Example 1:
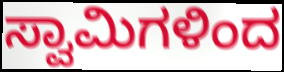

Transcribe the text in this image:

ಸ್ವಾಮಿಗಳಿಂದ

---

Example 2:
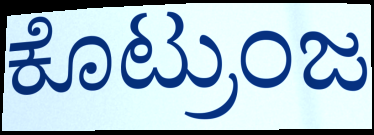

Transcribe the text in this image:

ಕೊಟ್ರುಂಜ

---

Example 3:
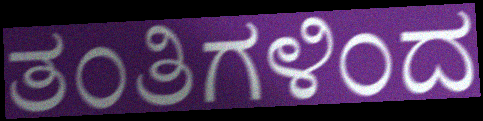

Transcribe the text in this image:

ತಂತಿಗಳಿಂದ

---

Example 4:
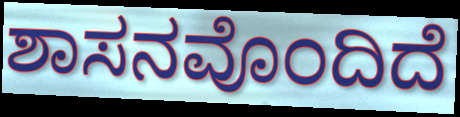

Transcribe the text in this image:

ಶಾಸನವೊಂದಿದೆ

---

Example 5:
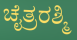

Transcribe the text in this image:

ಚೈತ್ರರಶ್ಮಿ